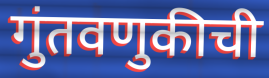
गुंतवणुकीची